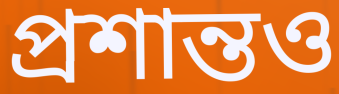
প্রশান্তও